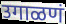
उगाळणं